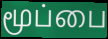
மூப்பை